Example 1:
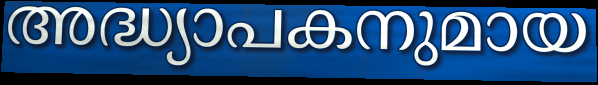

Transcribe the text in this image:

അദ്ധ്യാപകനുമായ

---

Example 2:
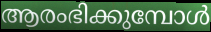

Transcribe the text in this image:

ആരംഭിക്കുമ്പോൾ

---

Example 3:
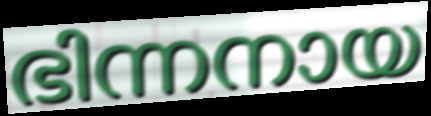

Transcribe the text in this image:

ഭിന്നനായ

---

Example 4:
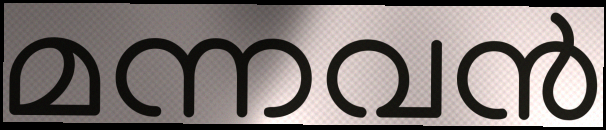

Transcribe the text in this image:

മന്നവൻ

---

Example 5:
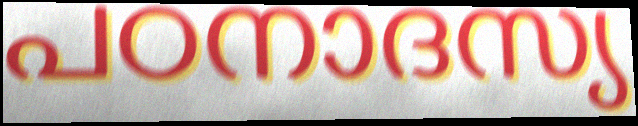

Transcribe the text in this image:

പഠനാദസ്യ